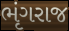
ભૃંગરાજ